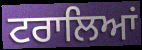
ਟਰਾਲਿਆਂ